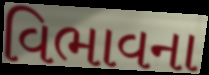
વિભાવના